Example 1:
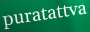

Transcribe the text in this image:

puratattva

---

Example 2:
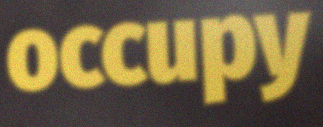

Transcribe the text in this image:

occupy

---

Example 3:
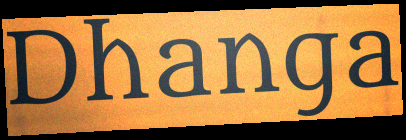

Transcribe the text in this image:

Dhanga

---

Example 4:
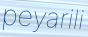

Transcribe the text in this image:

peyarili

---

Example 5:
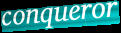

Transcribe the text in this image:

conqueror